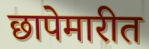
छापेमारीत